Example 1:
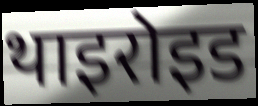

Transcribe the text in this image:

थाइरोइड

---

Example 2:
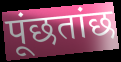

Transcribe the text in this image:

पूंछतांछ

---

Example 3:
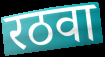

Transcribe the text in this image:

रठवा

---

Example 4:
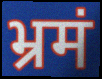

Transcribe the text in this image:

भ्रमं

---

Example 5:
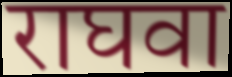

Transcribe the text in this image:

राघवा